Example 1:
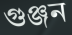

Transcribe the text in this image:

গুঞ্জন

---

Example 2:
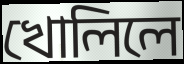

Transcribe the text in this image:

খোলিলে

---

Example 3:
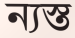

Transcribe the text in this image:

ন্যস্ত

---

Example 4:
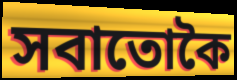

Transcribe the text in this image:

সবাতোকৈ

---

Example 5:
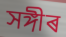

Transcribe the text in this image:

সঙ্গীৰ